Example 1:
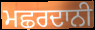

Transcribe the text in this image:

ਮਛਰਦਾਨੀ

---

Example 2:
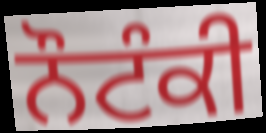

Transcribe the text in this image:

ਨੌਟੰਕੀ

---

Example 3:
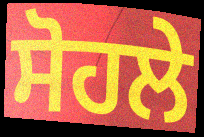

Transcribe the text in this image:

ਸੋਹਲੇ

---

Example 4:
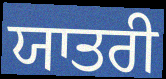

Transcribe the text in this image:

ਯਾਤਰੀ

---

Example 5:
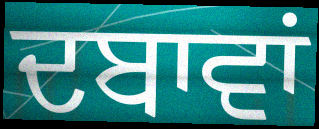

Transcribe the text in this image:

ਦਬਾਵਾਂ